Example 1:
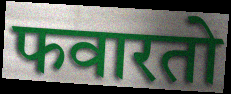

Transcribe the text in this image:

फवारतो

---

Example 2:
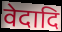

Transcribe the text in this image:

वेदादि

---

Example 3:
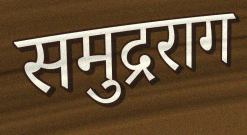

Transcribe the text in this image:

समुद्रराग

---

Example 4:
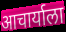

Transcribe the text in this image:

आचार्याला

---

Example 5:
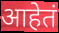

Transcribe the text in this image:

आहेतं